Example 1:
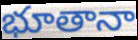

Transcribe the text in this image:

భూతానా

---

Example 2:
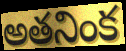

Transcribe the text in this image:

అతనింక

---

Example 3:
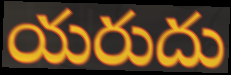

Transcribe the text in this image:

యరుదు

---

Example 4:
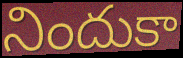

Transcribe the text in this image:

నిందుకా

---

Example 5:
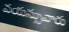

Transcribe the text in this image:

వయస్సువారు